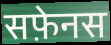
सफ़ेनस